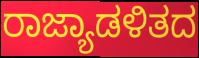
ರಾಜ್ಯಾಡಳಿತದ